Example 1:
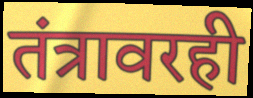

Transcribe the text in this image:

तंत्रावरही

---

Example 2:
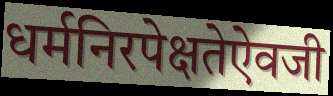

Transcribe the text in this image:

धर्मनिरपेक्षतेऐवजी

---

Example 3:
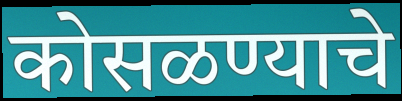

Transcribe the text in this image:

कोसळण्याचे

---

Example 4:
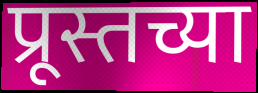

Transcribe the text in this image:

प्रूस्तच्या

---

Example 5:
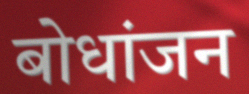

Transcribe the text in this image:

बोधांजन